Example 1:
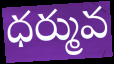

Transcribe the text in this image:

ధర్మువ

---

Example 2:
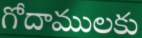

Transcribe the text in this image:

గోదాములకు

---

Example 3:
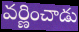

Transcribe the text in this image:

వర్ణించాడు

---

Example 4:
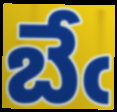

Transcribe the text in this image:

బేఁ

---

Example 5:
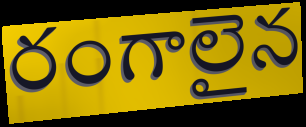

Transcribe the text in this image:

రంగాలైన